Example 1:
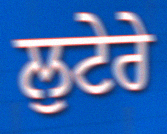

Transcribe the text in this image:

ਲੁਟੇਰੇ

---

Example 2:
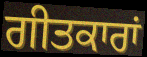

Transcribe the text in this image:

ਗੀਤਕਾਰਾਂ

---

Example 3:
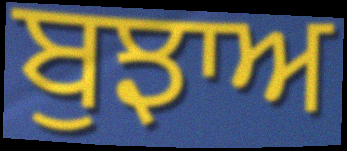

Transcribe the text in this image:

ਬੁਝਾਅ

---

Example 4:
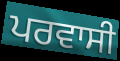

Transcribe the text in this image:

ਪਰਵਾਸੀ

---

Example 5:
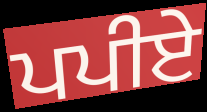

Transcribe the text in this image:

ਪਪੀਏ